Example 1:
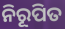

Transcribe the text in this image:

ନିରୂପିତ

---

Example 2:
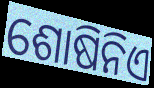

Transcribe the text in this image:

ଶୋଷିନିଏ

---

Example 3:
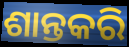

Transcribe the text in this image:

ଶାନ୍ତକରି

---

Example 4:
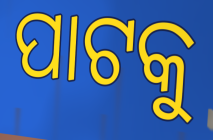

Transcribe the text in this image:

ପାଟକୁ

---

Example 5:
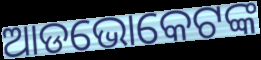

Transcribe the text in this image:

ଆଡଭୋକେଟଙ୍କ